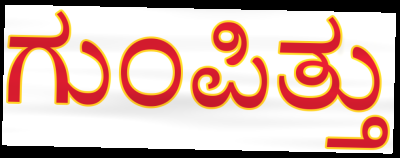
ಗುಂಪಿತ್ತು